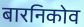
बारनिकोव